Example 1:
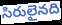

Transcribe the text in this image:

సిరులైనది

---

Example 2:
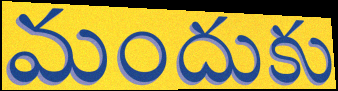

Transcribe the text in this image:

మందుకు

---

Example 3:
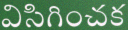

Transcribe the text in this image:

విసిగించక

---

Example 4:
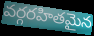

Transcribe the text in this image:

వర్గరహితమైన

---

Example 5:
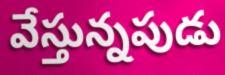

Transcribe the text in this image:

వేస్తున్నపుడు